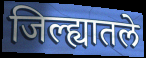
जिल्ह्यातले